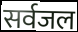
सर्वजल